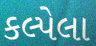
કલ્પેલા